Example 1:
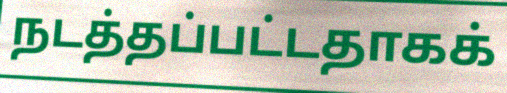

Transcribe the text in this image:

நடத்தப்பட்டதாகக்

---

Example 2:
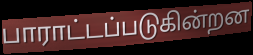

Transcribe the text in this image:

பாராட்டப்படுகின்றன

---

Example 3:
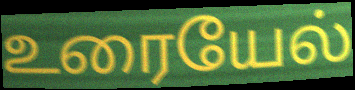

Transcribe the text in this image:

உரையேல்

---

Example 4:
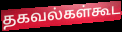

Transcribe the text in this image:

தகவல்கள்கூட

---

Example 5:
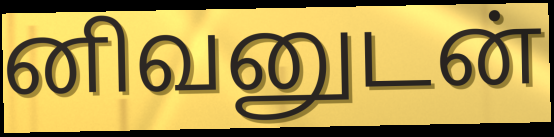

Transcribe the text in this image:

னிவனுடன்